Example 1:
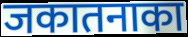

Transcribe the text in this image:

जकातनाका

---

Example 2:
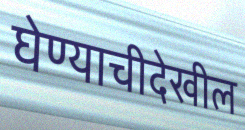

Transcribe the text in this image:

घेण्याचीदेखील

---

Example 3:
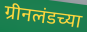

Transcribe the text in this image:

ग्रीनलंडच्या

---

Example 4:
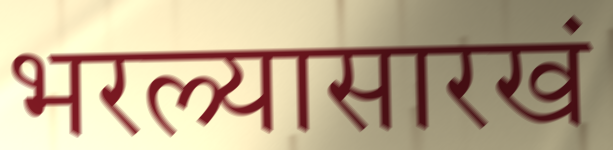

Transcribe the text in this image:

भरल्यासारखं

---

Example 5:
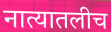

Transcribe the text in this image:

नात्यातलीच